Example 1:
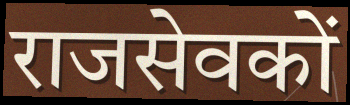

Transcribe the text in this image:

राजसेवकों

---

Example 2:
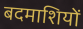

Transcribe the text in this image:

बदमाशियों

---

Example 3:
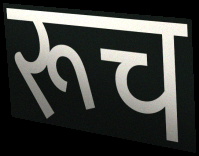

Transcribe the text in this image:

रूच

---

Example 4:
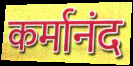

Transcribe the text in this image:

कर्मानंद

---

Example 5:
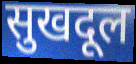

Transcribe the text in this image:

सुखदूल